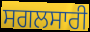
ਸਗਲਸਾਰੀ